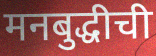
मनबुद्धीची